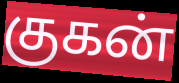
குகன்